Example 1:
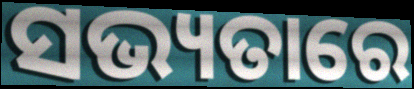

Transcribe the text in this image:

ସଭ୍ୟତାରେ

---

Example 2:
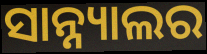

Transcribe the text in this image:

ସାନ୍ନ୍ୟାଲର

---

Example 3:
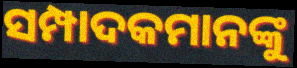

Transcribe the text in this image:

ସମ୍ପାଦକମାନଙ୍କୁ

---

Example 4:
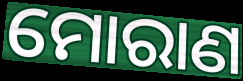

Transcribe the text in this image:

ମୋରାଣ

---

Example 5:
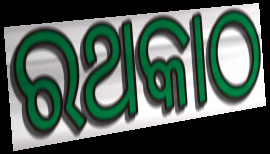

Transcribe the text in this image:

ରଥକାଠ